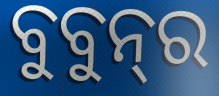
ବୁବୁନ୍‌ର